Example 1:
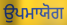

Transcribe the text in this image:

ਉਪਮਾਯੋਗ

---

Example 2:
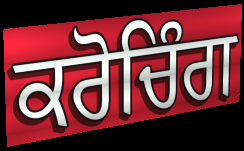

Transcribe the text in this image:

ਕਰੋਚਿੰਗ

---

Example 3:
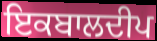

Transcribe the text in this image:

ਇਕਬਾਲਦੀਪ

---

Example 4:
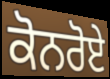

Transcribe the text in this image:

ਕੋਨਰੋਏ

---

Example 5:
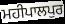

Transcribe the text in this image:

ਮਹੀਪਾਲਪੁਰ